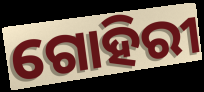
ଗୋହିରୀ